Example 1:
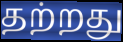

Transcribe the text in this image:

தற்றது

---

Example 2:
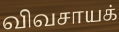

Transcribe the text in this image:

விவசாயக்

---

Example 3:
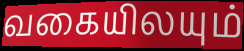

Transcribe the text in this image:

வகையிலயும்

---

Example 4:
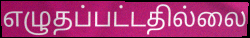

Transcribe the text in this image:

எழுதப்பட்டதில்லை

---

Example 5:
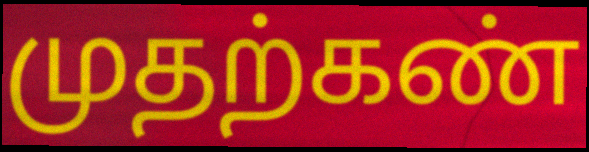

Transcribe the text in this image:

முதற்கண்